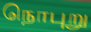
நொபுறு